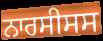
ਨਾਰਸੀਸਸ